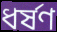
ধর্ষণ